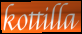
kottilla